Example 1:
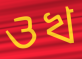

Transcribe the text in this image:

ওখ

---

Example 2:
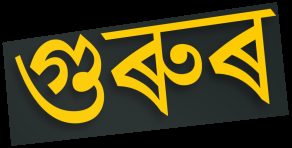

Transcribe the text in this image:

গুৰুৰ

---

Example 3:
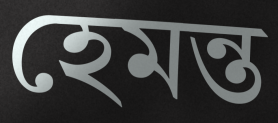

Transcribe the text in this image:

হেমন্ত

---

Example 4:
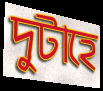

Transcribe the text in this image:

দুটাহে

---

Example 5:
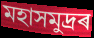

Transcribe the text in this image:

মহাসমুদ্ৰৰ